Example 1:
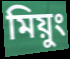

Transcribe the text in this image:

মিয়ুং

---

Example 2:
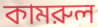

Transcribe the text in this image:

কামরুল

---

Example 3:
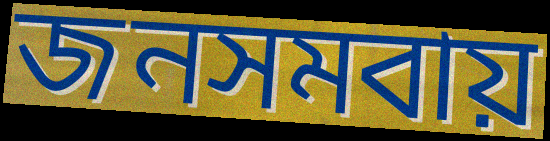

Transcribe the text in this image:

জনসমবায়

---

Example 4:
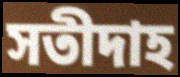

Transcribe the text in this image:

সতীদাহ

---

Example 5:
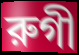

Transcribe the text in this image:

রুগী